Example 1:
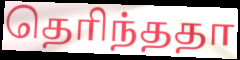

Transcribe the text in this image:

தெரிந்ததா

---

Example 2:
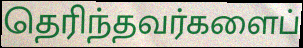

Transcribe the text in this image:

தெரிந்தவர்களைப்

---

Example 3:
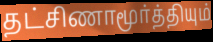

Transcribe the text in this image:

தட்சிணாமூர்த்தியும்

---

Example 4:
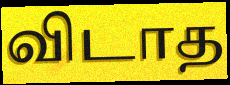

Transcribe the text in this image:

விடாத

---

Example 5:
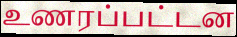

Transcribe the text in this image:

உணரப்பட்டன